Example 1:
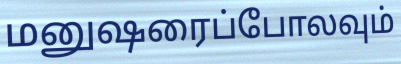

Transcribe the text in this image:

மனுஷரைப்போலவும்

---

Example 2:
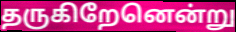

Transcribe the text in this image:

தருகிறேனென்று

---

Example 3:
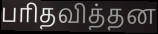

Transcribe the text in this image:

பரிதவித்தன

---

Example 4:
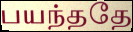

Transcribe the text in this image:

பயந்ததே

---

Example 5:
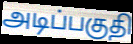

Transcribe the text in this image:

அடிப்பகுதி